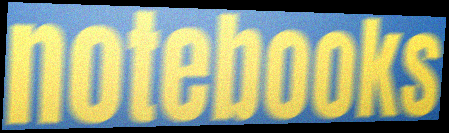
notebooks